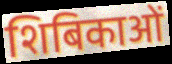
शिबिकाओं